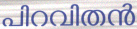
പിറവിതൻ